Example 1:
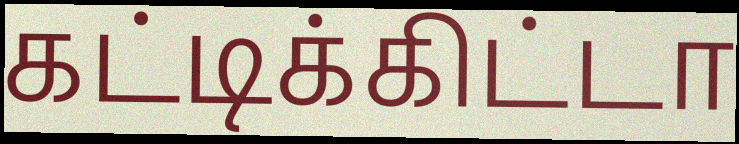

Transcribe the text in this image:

கட்டிக்கிட்டா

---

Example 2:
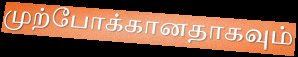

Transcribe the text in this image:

முற்போக்கானதாகவும்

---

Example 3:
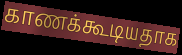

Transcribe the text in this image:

காணக்கூடியதாக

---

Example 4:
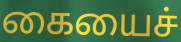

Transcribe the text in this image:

கையைச்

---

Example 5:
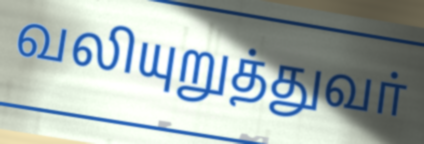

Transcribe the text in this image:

வலியுறுத்துவர்